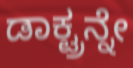
ಡಾಕ್ಟ್ರನ್ನೇ